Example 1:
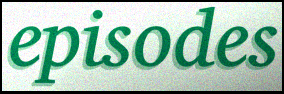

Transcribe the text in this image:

episodes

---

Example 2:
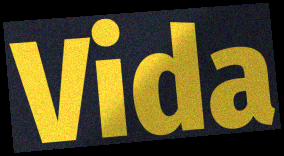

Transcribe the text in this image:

Vida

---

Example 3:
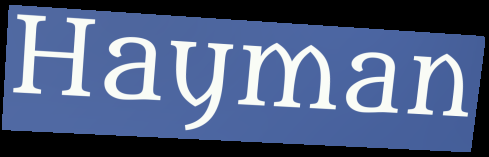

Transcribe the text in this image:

Hayman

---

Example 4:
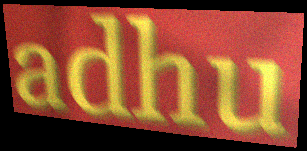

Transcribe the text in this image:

adhu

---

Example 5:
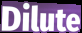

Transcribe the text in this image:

Dilute